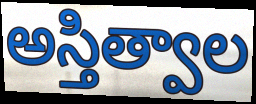
అస్తిత్వాల